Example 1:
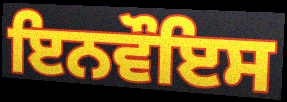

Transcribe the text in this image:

ਇਨਵੌਇਸ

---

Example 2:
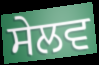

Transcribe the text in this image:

ਸੇਲਵ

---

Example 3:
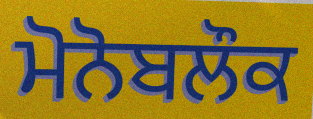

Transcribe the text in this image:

ਮੋਨੋਬਲੌਕ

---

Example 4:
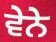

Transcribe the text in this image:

ਵੇਨੇ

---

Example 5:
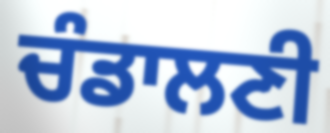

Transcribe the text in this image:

ਚੰਡਾਲਣੀ